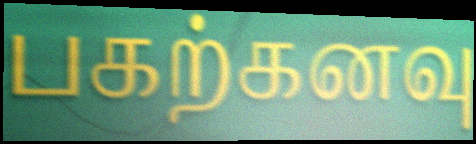
பகற்கனவு